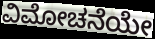
ವಿಮೋಚನೆಯೇ